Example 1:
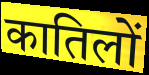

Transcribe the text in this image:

कातिलों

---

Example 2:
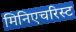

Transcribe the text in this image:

मिनिएचरिस्ट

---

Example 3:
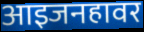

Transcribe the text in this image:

आइजनहावर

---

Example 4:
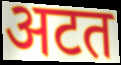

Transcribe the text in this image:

अटत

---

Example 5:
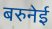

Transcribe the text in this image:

बरुनेई